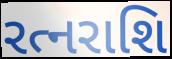
રત્નરાશિ